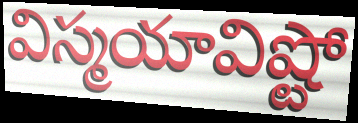
విస్మయావిష్టో